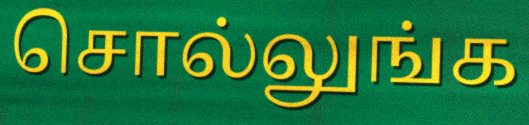
சொல்லுங்க